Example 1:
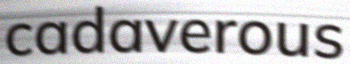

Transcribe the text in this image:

cadaverous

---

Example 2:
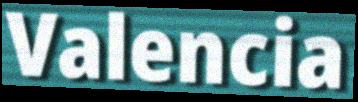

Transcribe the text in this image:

Valencia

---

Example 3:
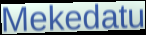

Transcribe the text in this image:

Mekedatu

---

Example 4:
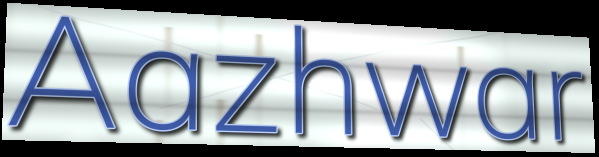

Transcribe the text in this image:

Aazhwar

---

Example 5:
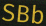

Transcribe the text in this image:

SBb